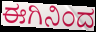
ಈಗಿನಿಂದ